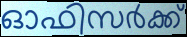
ഓഫിസർക്ക്